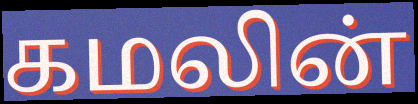
கமலின்